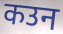
कउन